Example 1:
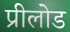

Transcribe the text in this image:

प्रीलोड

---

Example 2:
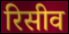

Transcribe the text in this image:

रिसीव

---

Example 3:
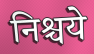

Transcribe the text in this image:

निश्चये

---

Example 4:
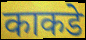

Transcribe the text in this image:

काकडे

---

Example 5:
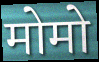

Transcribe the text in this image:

मोमो